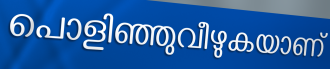
പൊളിഞ്ഞുവീഴുകയാണ്